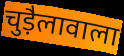
चुड़ैलावाला